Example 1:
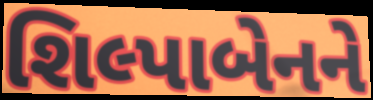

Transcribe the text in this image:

શિલ્પાબેનને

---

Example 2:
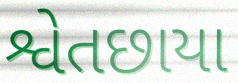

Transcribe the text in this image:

શ્વેતછાયા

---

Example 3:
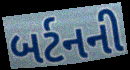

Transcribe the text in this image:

બર્ટનની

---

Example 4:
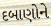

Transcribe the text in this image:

દબાણોને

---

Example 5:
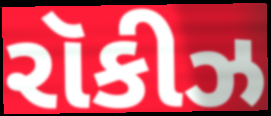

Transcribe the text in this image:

રૉકીઝ